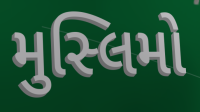
મુસ્લિમો